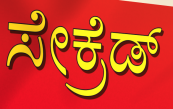
ಸೇಕ್ರೆಡ್